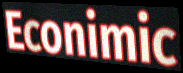
Econimic